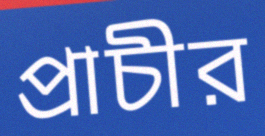
প্রাচীর